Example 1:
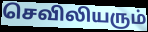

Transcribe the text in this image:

செவிலியரும்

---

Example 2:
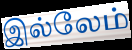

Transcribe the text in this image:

இல்லேம்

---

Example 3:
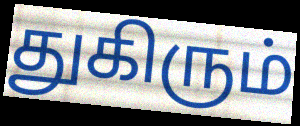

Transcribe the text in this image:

துகிரும்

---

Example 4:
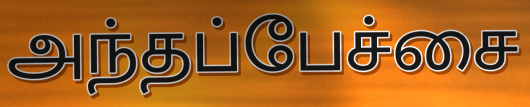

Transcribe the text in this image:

அந்தப்பேச்சை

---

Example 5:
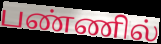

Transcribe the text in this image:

பண்ணில்